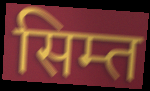
सिम्त